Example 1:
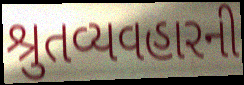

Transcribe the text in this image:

શ્રુતવ્યવહારની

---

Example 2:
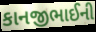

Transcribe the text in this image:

કાનજીભાઈની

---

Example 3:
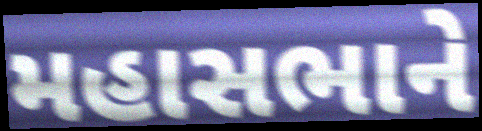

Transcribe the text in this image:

મહાસભાને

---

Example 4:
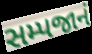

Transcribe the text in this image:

સમ્પજાનં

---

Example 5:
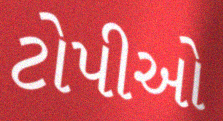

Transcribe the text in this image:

ટોપીઓ